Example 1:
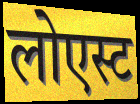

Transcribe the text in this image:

लोएस्ट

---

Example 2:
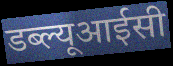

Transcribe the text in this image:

डब्ल्यूआईसी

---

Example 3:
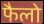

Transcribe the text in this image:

फैलो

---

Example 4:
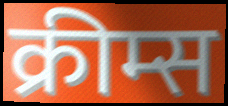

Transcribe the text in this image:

क्रीम्‍स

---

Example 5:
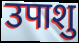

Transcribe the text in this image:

उपाशु